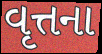
વૃત્તના